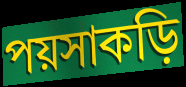
পয়সাকড়ি